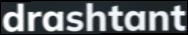
drashtant